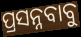
ପ୍ରସନ୍ନବାବୁ